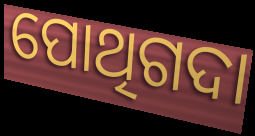
ପୋଥିଗଦା